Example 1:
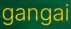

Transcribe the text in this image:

gangai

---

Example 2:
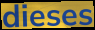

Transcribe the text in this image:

dieses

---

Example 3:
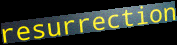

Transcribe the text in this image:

resurrection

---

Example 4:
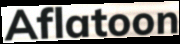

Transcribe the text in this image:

Aflatoon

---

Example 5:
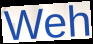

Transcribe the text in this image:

Weh